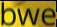
bwe